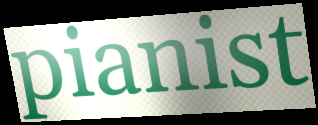
pianist